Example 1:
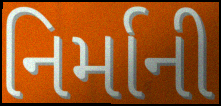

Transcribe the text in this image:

નિર્માની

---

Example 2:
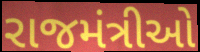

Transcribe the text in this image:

રાજમંત્રીઓ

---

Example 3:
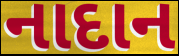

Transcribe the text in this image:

નાદાન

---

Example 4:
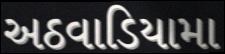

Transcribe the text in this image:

અઠવાડિયામા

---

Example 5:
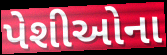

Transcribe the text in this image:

પેશીઓના